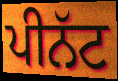
ਪੀਨੱਟ